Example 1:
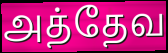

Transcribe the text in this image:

அத்தேவ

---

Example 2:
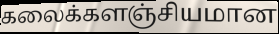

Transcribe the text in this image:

கலைக்களஞ்சியமான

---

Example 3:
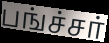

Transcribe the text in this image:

பங்ச்சர்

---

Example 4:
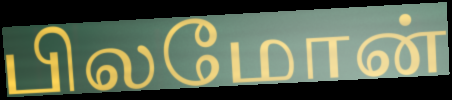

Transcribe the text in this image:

பிலமோன்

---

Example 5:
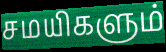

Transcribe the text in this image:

சமயிகளும்